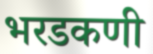
भरडकणी